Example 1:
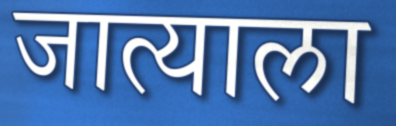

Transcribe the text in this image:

जात्याला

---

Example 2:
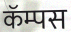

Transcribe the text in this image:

कॅम्पस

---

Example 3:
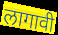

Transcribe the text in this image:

लागावी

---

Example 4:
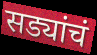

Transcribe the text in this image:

सड्यांचं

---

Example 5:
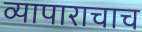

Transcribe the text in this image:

व्यापाराचाच